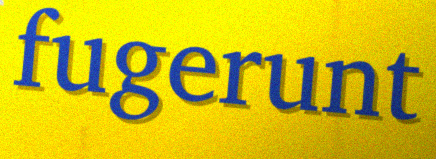
fugerunt